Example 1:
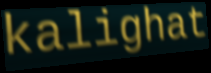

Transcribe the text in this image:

kalighat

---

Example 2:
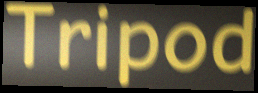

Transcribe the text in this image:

Tripod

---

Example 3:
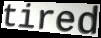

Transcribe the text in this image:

tired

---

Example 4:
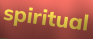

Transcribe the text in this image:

spiritual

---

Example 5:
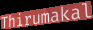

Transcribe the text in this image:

Thirumakal